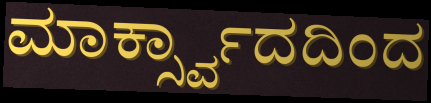
ಮಾರ್ಕ್ಸ್ವಾದದಿಂದ